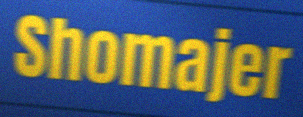
Shomajer